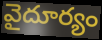
వైదూర్యం